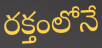
రక్తంలోనే